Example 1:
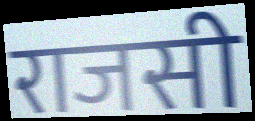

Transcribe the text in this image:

राजसी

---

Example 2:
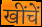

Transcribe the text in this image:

खींचें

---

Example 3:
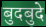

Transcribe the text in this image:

बुदबुदे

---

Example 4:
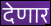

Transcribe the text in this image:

देणार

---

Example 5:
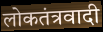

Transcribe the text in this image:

लोकतंत्रवादी